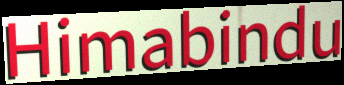
Himabindu